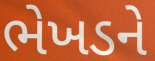
ભેખડને